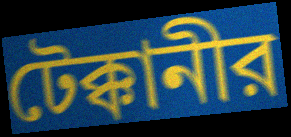
টেক্কানীর